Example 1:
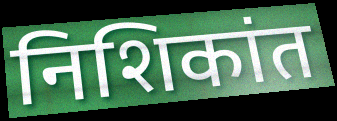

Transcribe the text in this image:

निशिकांत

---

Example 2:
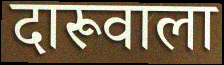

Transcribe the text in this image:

दारूवाला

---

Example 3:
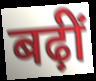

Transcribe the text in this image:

बढ़ीं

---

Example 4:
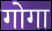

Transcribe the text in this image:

गोगा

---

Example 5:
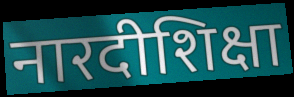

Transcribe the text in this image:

नारदीशिक्षा